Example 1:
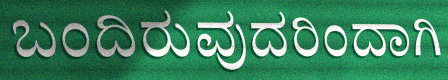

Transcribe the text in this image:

ಬಂದಿರುವುದರಿಂದಾಗಿ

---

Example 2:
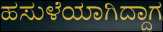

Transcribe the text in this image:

ಹಸುಳೆಯಾಗಿದ್ದಾಗ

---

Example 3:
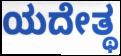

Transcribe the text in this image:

ಯದೇತ್ಥ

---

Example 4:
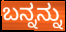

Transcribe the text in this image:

ಬನ್ನನ್ನು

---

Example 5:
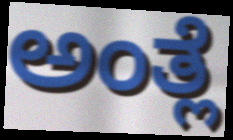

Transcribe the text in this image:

ಅಂತ್ಲೆ